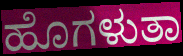
ಹೊಗಳುತಾ